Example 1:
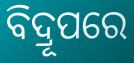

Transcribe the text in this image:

ବିଦ୍ରୂପରେ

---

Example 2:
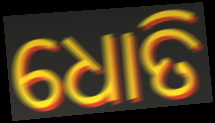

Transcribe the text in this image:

ଧୋତି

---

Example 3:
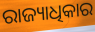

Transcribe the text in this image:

ରାଜ୍ୟାଧିକାର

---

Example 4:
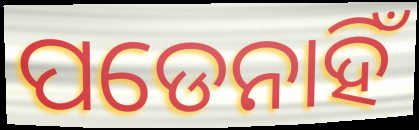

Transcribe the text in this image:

ପଡେନାହିଁ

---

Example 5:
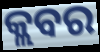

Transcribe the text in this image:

କ୍ଲବର